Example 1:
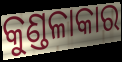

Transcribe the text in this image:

କୁଣ୍ଡଳାକାର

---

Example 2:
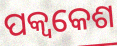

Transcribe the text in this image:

ପକ୍ଵକେଶ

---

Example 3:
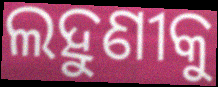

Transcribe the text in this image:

ଲହୁଣୀକୁ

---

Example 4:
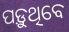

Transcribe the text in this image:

ପଡ଼ୁଥିବେ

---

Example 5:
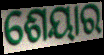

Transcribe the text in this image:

ଶେୟାର